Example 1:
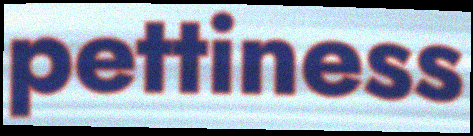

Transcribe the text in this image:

pettiness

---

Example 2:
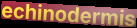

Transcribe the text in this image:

echinodermis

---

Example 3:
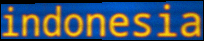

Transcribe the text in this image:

indonesia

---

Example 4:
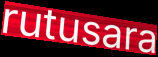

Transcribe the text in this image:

rutusara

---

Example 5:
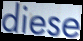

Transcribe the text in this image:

diese